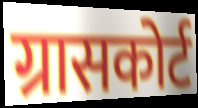
ग्रासकोर्ट